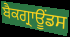
ਬੈਕਗ੍ਰਾਊਂਡਸ